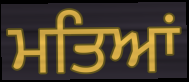
ਮਤਿਆਂ